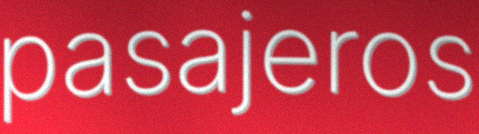
pasajeros